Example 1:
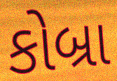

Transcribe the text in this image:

કોબ્રા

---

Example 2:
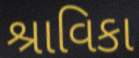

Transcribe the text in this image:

શ્રાવિકા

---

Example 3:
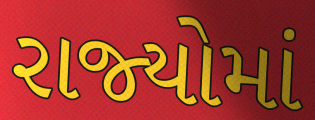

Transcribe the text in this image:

રાજ્‍યોમાં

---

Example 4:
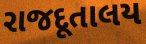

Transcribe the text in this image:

રાજદૂતાલય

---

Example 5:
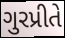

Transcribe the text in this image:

ગુરપ્રીતે